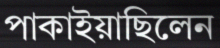
পাকাইয়াছিলেন